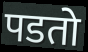
पडतो